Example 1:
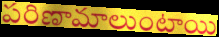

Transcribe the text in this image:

పరిణామాలుంటాయి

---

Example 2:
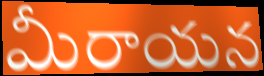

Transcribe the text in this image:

మీరాయన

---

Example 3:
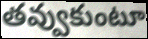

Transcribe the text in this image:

తవ్వుకుంటూ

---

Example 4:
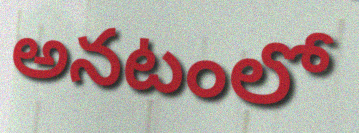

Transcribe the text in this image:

అనటంలో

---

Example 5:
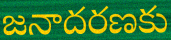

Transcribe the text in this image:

జనాదరణకు